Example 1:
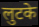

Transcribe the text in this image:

लुटके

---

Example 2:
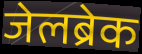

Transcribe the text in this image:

जेलब्रेक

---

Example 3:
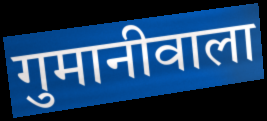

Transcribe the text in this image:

गुमानीवाला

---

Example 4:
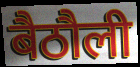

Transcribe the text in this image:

बैठौली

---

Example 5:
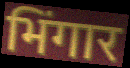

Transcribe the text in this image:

भिंगार